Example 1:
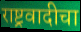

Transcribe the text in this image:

राष्ट्रवादीचा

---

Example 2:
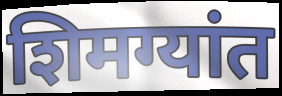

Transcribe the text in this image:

शिमग्यांत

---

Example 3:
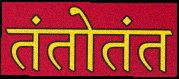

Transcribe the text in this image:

तंतोतंत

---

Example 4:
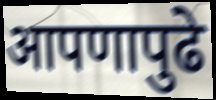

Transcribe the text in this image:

आपणापुढे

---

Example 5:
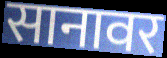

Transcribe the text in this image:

सानावर